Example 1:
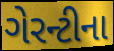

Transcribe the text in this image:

ગેરન્ટીના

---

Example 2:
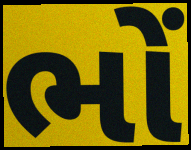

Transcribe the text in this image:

ભોં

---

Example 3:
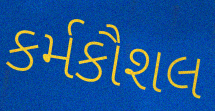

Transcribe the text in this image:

કર્મકૌશલ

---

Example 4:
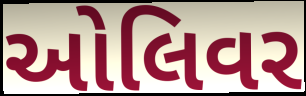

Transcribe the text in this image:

ઓલિવર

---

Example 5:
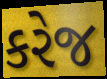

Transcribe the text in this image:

કરેજ